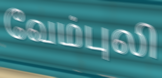
வேம்புலி